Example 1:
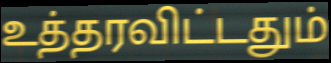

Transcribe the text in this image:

உத்தரவிட்டதும்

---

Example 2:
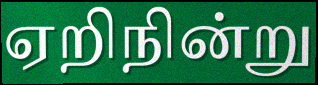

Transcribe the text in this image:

ஏறிநின்று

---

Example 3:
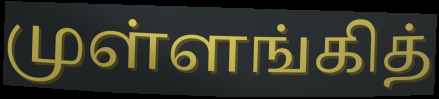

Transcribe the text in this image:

முள்ளங்கித்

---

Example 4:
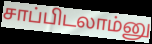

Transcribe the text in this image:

சாப்பிடலாம்னு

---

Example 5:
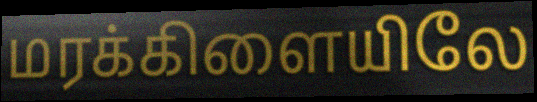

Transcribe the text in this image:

மரக்கிளையிலே